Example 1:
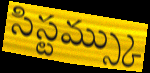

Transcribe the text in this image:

సిస్టమ్స్కు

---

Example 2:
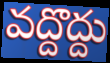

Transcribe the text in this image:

వద్దొద్దు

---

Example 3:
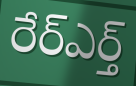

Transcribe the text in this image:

రేర్ఎర్త్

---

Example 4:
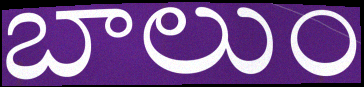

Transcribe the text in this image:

బాలుం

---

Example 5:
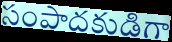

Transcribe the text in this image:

సంపాదకుడిగా